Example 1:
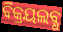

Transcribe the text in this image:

ବିକ୍ରୟଲବ୍ଧ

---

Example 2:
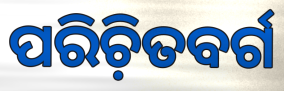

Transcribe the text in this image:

ପରିଚ଼ିତବର୍ଗ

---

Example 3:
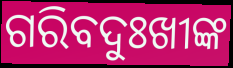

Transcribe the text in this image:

ଗରିବଦୁଃଖୀଙ୍କ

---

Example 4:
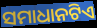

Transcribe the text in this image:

ସମାଧାନଟିଏ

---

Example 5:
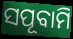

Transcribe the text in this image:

ସପୂବାମି